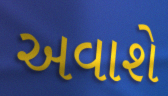
અવાશે